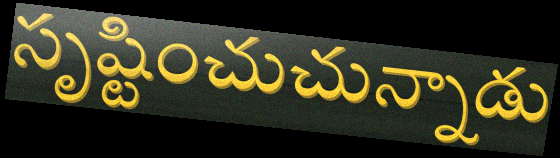
సృష్టించుచున్నాడు